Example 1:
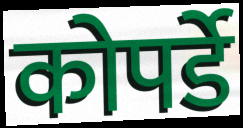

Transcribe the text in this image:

कोपर्डे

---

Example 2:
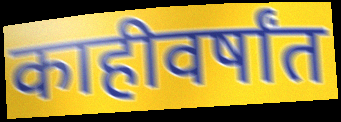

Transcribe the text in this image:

काहीवर्षांत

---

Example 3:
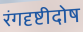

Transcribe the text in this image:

रंगदृष्टीदोष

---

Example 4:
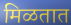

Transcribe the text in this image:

मिळतात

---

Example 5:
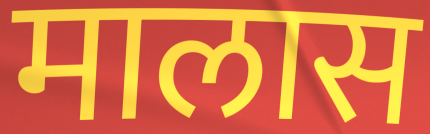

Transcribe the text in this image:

मालास